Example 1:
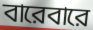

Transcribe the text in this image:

বারেবারে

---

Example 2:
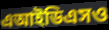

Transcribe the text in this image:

এআইডিএসও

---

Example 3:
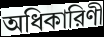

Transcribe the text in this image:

অধিকারিণী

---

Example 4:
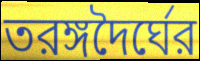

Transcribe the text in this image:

তরঙ্গদৈর্ঘের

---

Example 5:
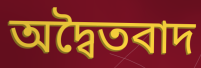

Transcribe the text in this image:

অদ্বৈতবাদ